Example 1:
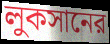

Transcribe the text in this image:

লুকসানের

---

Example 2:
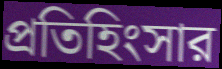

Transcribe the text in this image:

প্রতিহিংসার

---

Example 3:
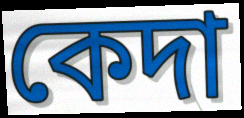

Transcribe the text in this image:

কেদা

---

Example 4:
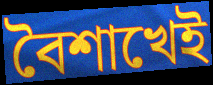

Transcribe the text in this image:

বৈশাখেই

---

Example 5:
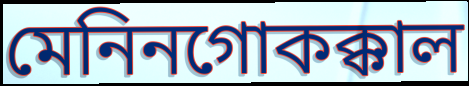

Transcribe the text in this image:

মেনিনগোকক্কাল